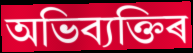
অভিব্যক্তিৰ